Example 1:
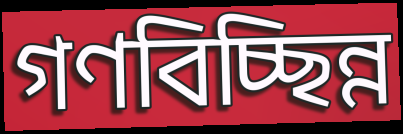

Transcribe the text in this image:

গণবিচ্ছিন্ন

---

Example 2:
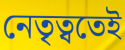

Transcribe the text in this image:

নেতৃত্বতেই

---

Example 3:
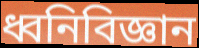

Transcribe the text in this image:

ধ্বনিবিজ্ঞান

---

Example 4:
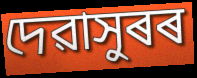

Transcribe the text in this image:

দেৱাসুৰৰ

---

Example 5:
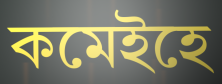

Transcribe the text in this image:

কমেইহে